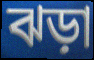
ঝড়া